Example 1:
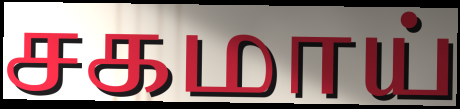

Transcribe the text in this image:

சகமாய்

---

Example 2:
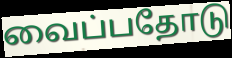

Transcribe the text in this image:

வைப்பதோடு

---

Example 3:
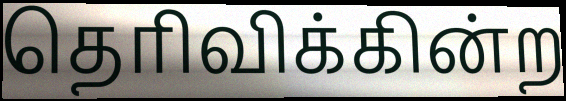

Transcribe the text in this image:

தெரிவிக்கின்ற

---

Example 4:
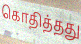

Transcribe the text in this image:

கொதித்தது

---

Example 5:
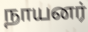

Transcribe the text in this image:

நாயனர்